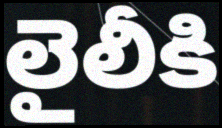
లైలీకి